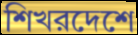
শিখরদেশে